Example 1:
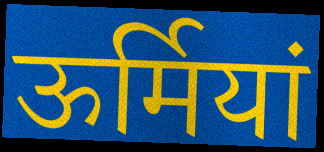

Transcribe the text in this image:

ऊर्मियां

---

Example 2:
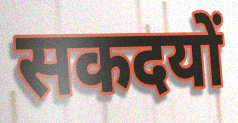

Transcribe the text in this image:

सकदयों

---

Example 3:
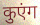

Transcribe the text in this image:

कुएंग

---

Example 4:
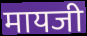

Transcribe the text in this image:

मायजी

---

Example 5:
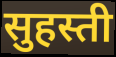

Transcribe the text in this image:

सुहस्ती